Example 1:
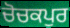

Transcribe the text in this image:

ਚੋਚਕਪੁਰ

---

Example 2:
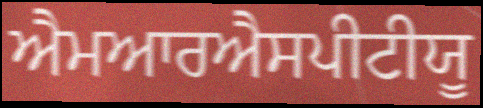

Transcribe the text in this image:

ਐਮਆਰਐਸਪੀਟੀਯੂ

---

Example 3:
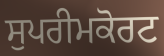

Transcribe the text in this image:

ਸੁਪਰੀਮਕੋਰਟ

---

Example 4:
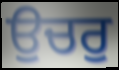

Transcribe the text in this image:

ਉਚਰੁ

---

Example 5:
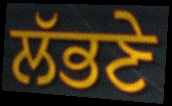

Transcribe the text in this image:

ਲੱਭਣੇ